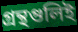
গ্রন্থগুলিই